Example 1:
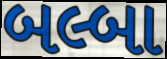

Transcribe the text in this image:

બલ્બા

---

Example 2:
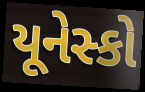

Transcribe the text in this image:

યૂનેસ્કો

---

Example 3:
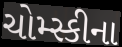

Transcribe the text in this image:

ચોમ્સ્કીના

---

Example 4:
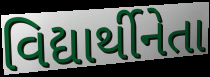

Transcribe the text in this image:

વિદ્યાર્થીનેતા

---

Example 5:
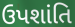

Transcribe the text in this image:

ઉપશાંતિ